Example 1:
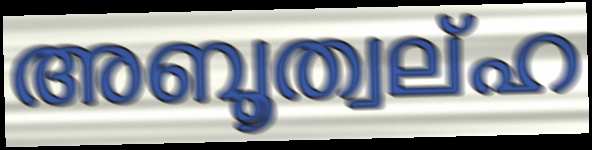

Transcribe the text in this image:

അബൂത്വല്ഹ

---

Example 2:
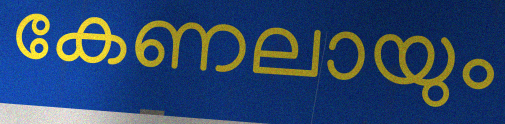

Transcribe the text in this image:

കേണലായും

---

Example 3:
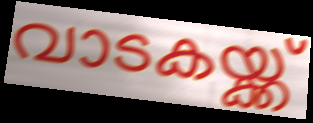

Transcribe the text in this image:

വാടകയ്ക്ക്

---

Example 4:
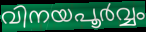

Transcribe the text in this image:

വിനയപൂർവ്വം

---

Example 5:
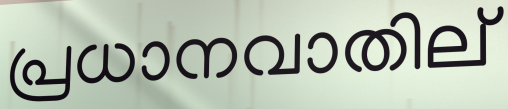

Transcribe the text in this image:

പ്രധാനവാതില്